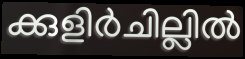
ക്കുളിർചില്ലിൽ